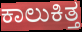
ಕಾಲುಕಿತ್ತ